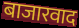
बाजारवाद